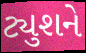
ટ્યુશને